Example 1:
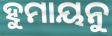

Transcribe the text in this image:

ହୁମାୟନୁ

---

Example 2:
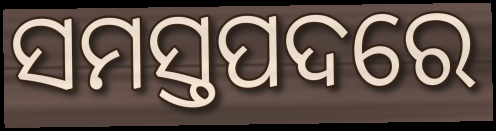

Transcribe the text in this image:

ସମସ୍ତପଦରେ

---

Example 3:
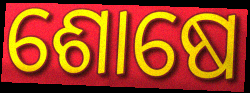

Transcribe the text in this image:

ଶୋଷେ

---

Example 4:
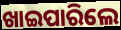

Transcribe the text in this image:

ଖାଇପାରିଲେ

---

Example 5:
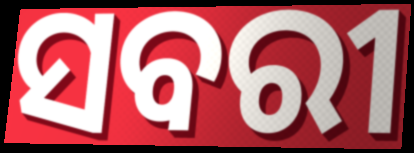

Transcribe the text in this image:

ସବରୀ